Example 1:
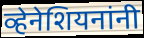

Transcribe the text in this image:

व्हेनेशियनांनी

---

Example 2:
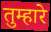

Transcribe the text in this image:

तुम्हारे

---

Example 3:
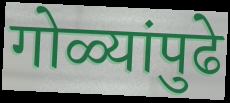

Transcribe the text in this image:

गोळ्यांपुढे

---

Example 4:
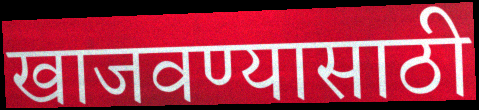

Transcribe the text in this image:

खाजवण्यासाठी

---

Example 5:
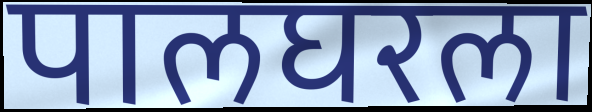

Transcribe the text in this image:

पालघरला